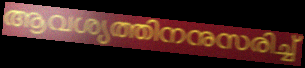
ആവശ്യത്തിനനുസരിച്ച്